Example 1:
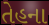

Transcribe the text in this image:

તેહના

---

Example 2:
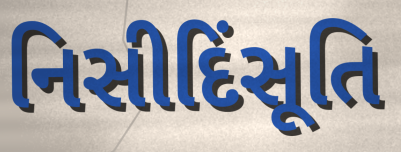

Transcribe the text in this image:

નિસીદિંસૂતિ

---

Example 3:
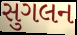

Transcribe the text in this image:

સુગલન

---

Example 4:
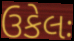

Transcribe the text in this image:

ઉકેલઃ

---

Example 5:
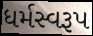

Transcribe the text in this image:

ધર્મસ્વરૂપ